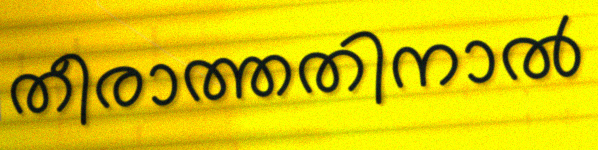
തീരാത്തതിനാൽ